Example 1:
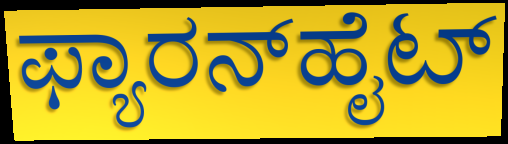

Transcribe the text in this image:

ಫ್ಯಾರನ್‌ಹೈಟ್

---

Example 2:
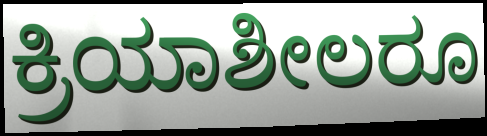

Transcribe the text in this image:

ಕ್ರಿಯಾಶೀಲರೂ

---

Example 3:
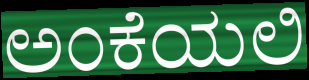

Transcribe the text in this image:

ಅಂಕೆಯಲಿ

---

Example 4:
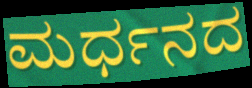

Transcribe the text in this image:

ಮರ್ಧನದ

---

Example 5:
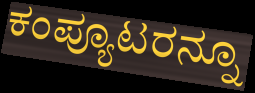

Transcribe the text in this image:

ಕಂಪ್ಯೂಟರನ್ನೂ